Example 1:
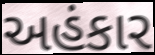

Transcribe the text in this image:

અહંકાર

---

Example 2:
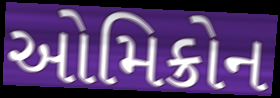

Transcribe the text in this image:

ઓમિક્રોન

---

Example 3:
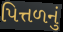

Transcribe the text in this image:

પિત્તળનું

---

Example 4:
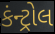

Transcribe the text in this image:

કંન્ટ્રોલ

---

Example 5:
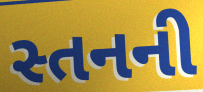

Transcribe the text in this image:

સ્તનની